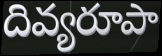
దివ్యరూపా